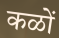
कळों